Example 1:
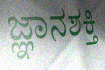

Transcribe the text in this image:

ಜ್ಞಾನಶಕ್ತಿ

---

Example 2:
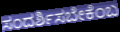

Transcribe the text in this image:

ಸಂದರ್ಶಿಸಬೇಕೆಂಬ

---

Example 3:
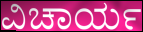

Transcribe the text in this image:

ವಿಚಾರ್ಯ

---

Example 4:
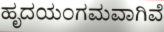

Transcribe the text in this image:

ಹೃದಯಂಗಮವಾಗಿವೆ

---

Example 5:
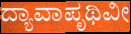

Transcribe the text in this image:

ದ್ಯಾವಾಪೃಥಿವೀ